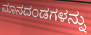
ಮಾನದಂಡಗಳನ್ನು